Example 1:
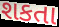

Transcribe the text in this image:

શકતા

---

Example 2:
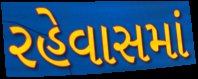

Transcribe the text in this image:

રહેવાસમાં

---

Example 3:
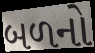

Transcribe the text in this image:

બળનો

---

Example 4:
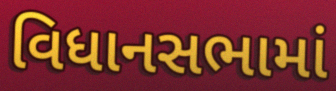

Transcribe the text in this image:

વિધાનસભામાં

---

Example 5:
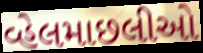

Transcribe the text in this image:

વ્હેલમાછલીઓ